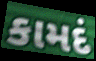
કામદં